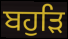
ਬਹੁੜਿ